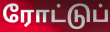
ரோட்டுப்